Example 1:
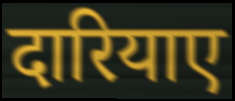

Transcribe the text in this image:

दारियाए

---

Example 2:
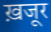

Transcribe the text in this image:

ख़जूर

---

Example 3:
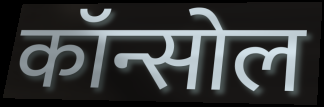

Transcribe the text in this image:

कॉन्सोल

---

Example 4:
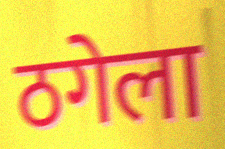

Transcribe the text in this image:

ठगेला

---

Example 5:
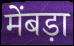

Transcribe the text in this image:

मेंबड़ा